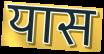
यास